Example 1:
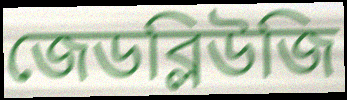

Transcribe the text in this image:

জেডব্লিউজি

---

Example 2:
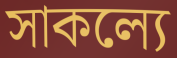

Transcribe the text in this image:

সাকল্যে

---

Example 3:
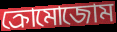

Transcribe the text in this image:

ক্রোমোজোম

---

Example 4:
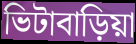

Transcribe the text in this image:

ভিটাবাড়িয়া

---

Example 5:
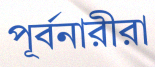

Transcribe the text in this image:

পূর্বনারীরা